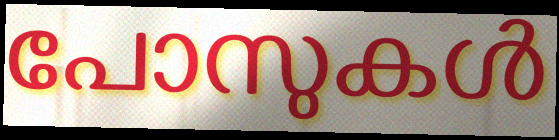
പോസുകൾ